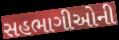
સહભાગીઓની